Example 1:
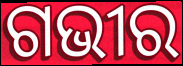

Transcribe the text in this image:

ଗଭୀର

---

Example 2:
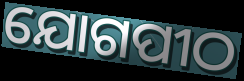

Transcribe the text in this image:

ଯୋଗପୀଠ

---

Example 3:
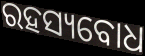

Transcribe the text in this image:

ରହସ୍ୟବୋଧ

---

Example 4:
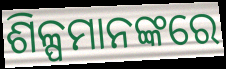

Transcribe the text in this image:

ଶିଳ୍ପମାନଙ୍କରେ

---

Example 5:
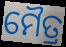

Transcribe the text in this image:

ମୈତ୍ର